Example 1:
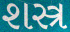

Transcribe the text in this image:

શસ્ત્ર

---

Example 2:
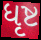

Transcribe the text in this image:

ધૃષ્ટ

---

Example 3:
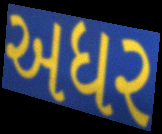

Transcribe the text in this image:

અધર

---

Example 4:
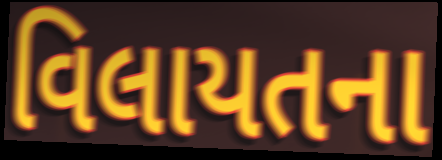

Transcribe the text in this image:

વિલાયતના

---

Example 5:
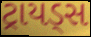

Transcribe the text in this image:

ટ્રાયડ્સ